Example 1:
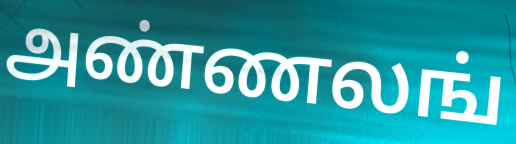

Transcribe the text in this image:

அண்ணலங்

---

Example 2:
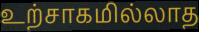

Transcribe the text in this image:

உற்சாகமில்லாத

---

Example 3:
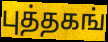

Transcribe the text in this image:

புத்தகங்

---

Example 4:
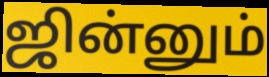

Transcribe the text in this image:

ஜின்னும்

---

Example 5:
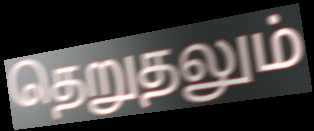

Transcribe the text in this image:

தெறுதலும்